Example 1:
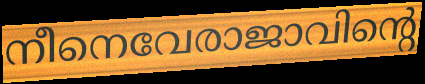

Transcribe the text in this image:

നീനെവേരാജാവിന്റെ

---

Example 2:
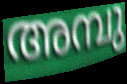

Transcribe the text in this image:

അമ്പു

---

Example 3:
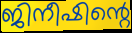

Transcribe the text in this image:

ജിനീഷിന്റെ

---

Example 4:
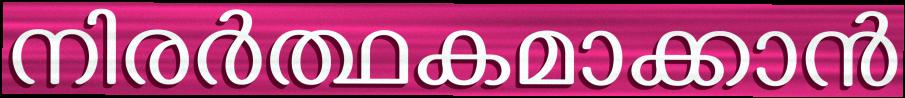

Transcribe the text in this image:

നിരർത്ഥകമാക്കാൻ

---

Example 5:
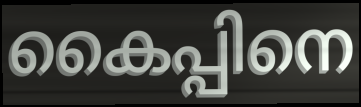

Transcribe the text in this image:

കൈപ്പിനെ